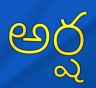
అర్ష